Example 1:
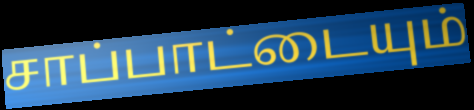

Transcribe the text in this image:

சாப்பாட்டையும்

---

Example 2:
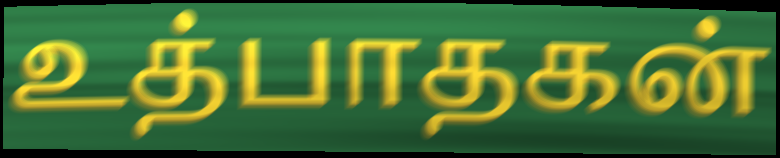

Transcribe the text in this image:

உத்பாதகன்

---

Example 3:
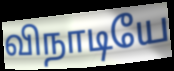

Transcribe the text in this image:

விநாடியே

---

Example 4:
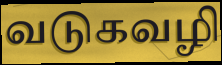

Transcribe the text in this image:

வடுகவழி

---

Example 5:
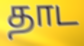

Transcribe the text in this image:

தாட